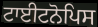
ਟਾਈਟਨੋਪਿਸ